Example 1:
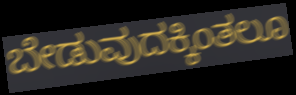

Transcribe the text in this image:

ಬೇಡುವುದಕ್ಕಿಂತಲೂ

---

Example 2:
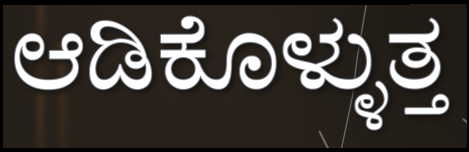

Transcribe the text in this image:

ಆಡಿಕೊಳ್ಳುತ್ತ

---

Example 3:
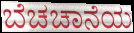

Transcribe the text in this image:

ಬೆಚಚಾನೆಯ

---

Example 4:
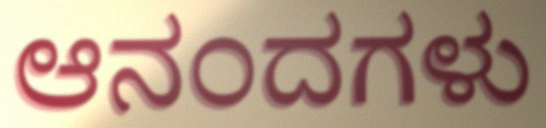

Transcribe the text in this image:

ಆನಂದಗಳು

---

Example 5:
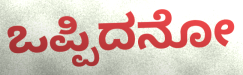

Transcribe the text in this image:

ಒಪ್ಪಿದನೋ